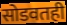
सोडवतही